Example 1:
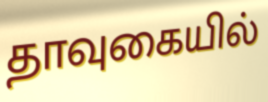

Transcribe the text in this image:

தாவுகையில்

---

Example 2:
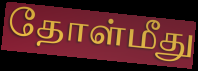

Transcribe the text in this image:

தோள்மீது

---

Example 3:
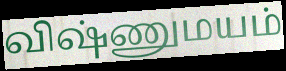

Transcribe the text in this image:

விஷ்ணுமயம்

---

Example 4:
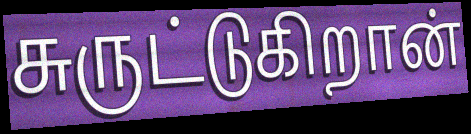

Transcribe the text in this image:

சுருட்டுகிறான்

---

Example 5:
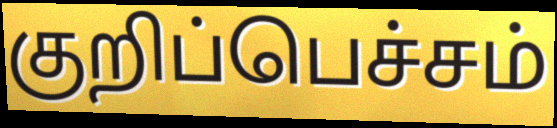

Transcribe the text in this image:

குறிப்பெச்சம்